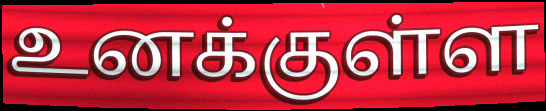
உனக்குள்ள